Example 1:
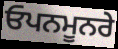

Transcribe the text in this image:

ਓਪਨਮੂਨਰੇ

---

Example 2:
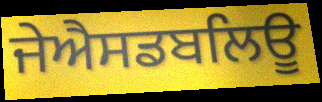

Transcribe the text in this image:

ਜੇਐਸਡਬਲਿਊ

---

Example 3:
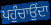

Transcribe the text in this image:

ਪਹੁੰਚਾਉਂਦਾ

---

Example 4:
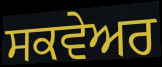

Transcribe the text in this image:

ਸਕਵੇਅਰ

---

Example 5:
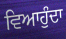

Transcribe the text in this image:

ਵਿਆਹੁੰਦਾ